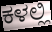
ಕಳಲ್ಲಿ